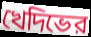
খেদিভের